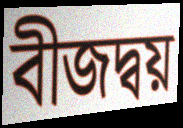
বীজদ্বয়